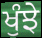
ਖੁੰਝੇ